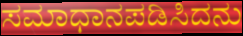
ಸಮಾಧಾನಪಡಿಸಿದನು